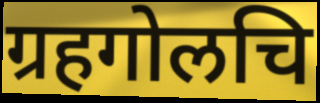
ग्रहगोलचि